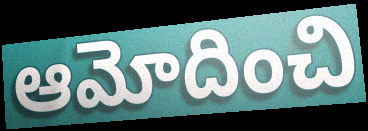
ఆమోదించి